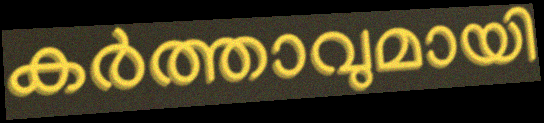
കർത്താവുമായി